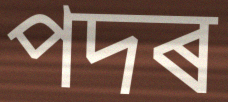
পদৰ